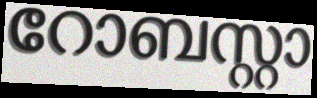
റോബസ്റ്റാ